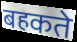
बहकते